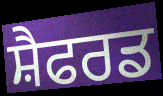
ਸ਼ੈਫਰਡ